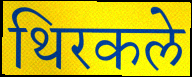
थिरकले